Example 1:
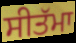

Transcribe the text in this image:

ਸੀਤੱਮਾ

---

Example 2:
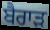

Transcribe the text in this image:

ਬੈਰਾੜ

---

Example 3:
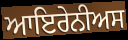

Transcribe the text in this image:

ਆਇਰੇਨੀਅਸ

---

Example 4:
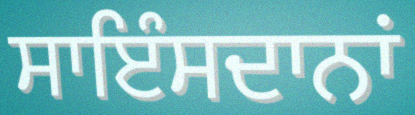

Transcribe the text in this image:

ਸਾਇੰਸਦਾਨਾਂ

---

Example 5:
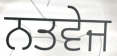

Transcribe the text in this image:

ਨਤਵੇਜ